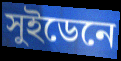
সুইডেনে